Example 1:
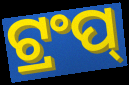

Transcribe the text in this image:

ଟ୍ରଂପ୍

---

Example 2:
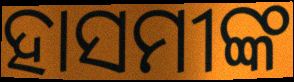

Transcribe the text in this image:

ହାସମୀଙ୍କ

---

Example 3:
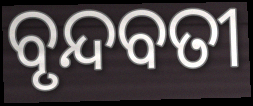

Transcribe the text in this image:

ବୃନ୍ଦବତୀ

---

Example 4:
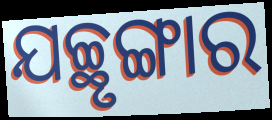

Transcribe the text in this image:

ଯଚ୍ଛୃଙ୍ଗାର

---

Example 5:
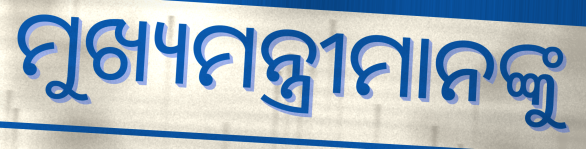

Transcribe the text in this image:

ମୁଖ୍ୟମନ୍ତ୍ରୀମାନଙ୍କୁ